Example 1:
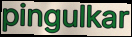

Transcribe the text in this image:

pingulkar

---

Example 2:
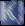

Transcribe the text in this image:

KJ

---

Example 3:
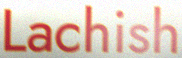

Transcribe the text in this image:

Lachish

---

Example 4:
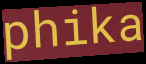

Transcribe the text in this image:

phika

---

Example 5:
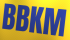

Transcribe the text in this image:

BBKM